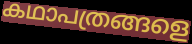
കഥാപത്രങ്ങളെ